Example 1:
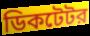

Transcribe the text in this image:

ডিকটেটর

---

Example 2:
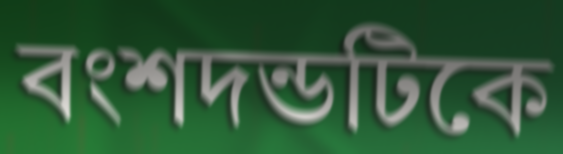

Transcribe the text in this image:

বংশদন্ডটিকে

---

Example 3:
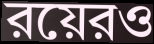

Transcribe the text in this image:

রয়েরও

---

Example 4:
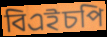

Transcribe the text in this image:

বিএইচপি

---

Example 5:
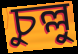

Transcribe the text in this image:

চুল্লু